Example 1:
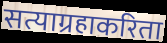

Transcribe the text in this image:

सत्याग्रहाकरिता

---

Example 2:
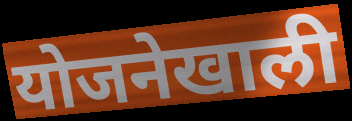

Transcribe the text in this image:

योजनेखाली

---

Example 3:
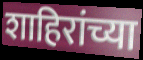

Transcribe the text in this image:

शाहिरांच्या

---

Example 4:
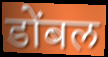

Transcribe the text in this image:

डोंबल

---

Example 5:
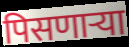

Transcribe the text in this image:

पिसणाऱ्या